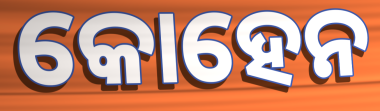
କୋହେନ